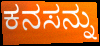
ಕನಸನ್ನು